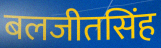
बलजीतसिंह